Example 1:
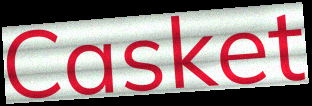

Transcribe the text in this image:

Casket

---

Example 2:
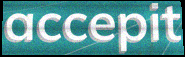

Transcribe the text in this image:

accepit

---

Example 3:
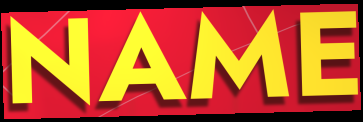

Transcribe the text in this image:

NAME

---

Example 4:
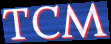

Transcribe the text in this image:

TCM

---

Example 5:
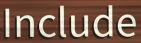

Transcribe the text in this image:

Include